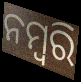
ନମ୍ବରି